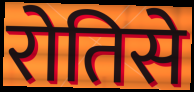
रोतिसे